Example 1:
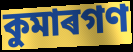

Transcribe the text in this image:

কুমাৰগণ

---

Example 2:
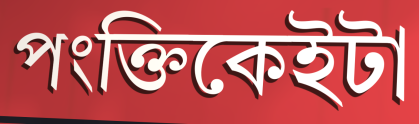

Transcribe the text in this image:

পংক্তিকেইটা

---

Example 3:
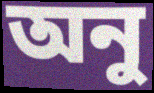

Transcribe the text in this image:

অনু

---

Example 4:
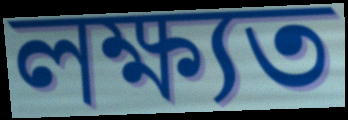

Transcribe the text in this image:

লক্ষ্যত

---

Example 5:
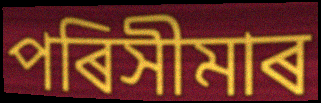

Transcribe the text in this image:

পৰিসীমাৰ